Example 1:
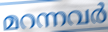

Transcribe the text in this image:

മറന്നവർ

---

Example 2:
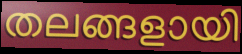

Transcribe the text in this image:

തലങ്ങളായി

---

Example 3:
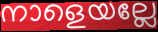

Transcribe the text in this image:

നാളെയല്ലേ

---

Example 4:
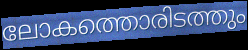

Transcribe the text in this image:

ലോകത്തൊരിടത്തും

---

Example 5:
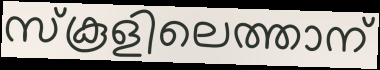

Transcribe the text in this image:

സ്കൂളിലെത്താന്